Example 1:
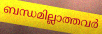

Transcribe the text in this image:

ബന്ധമില്ലാത്തവർ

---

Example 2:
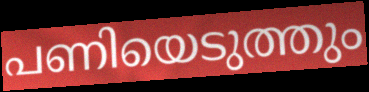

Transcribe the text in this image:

പണിയെടുത്തും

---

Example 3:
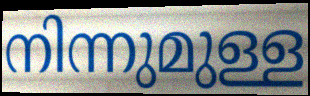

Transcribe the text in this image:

നിന്നുമുള്ള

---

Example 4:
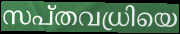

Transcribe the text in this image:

സപ്തവധ്രിയെ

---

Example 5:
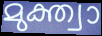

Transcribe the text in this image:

മുക്ത്വാ